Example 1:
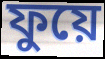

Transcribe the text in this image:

ফুয়ে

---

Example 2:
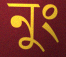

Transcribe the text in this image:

নুং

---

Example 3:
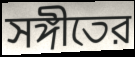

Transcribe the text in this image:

সঙ্গীতের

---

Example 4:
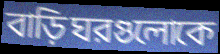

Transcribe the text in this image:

বাড়িঘরগুলোকে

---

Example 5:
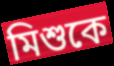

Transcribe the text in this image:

মিশুকে